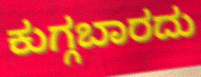
ಕುಗ್ಗಬಾರದು